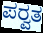
ಪರ್‍ವತ